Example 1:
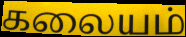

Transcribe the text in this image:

கலையம்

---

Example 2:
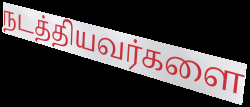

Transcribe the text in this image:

நடத்தியவர்களை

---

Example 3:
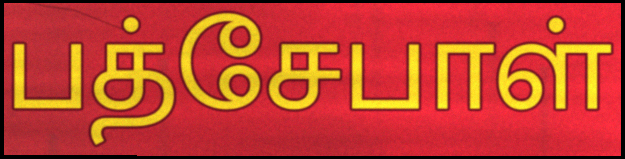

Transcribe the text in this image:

பத்சேபாள்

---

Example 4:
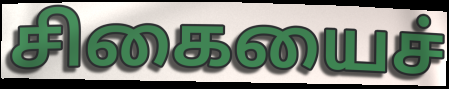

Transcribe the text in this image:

சிகையைச்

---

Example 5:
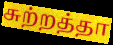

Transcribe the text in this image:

சுற்றத்தா